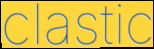
clastic